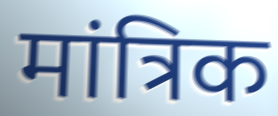
मांत्रिक